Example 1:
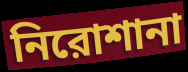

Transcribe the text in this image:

নিরোশানা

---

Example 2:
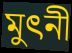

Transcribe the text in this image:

মুৎনী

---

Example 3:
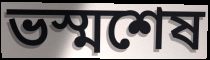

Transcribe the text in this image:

ভস্মশেষ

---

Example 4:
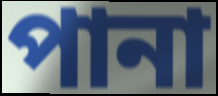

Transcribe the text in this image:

পানা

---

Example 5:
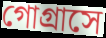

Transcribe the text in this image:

গোগ্রাসে